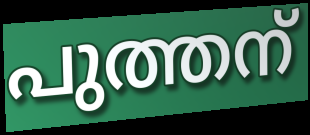
പുത്തന്